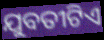
ଯୁବତୀଟିଏ